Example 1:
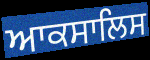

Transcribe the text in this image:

ਆਕਸਾਲਿਸ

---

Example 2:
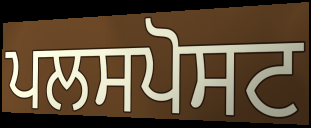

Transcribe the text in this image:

ਪਲਸਪੋਸਟ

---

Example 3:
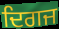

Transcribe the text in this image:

ਦਿਗਜ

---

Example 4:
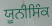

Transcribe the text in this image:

ਯੂਨੀਸਿੰਕ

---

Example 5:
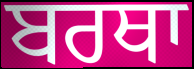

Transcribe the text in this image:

ਬਰਥਾ